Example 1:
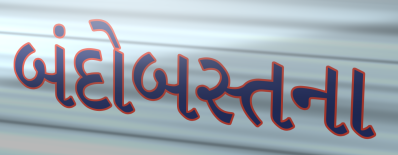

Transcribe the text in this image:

બંદોબસ્તના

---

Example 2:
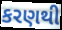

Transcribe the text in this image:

કરણથી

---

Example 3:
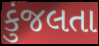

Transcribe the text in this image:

કુંજલતા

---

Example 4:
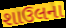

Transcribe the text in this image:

શાઉલના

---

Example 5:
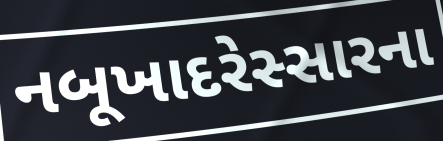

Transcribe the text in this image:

નબૂખાદરેસ્સારના